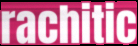
rachitic